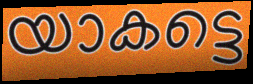
യാകട്ടെ